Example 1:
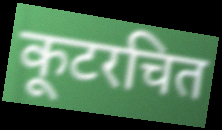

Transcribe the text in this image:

कूटरचित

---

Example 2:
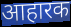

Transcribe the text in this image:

आहारक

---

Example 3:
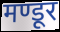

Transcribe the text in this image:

मण्डूर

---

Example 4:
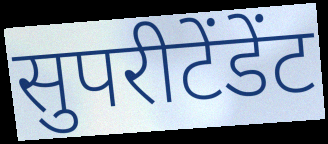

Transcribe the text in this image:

सुपरीटेंडेंट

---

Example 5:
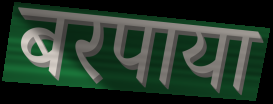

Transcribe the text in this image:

बरपाया